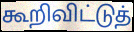
கூறிவிட்டுத்